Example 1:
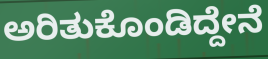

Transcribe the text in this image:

ಅರಿತುಕೊಂಡಿದ್ದೇನೆ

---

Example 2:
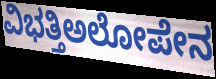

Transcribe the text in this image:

ವಿಭತ್ತಿಅಲೋಪೇನ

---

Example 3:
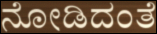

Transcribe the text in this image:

ನೋಡಿದಂತೆ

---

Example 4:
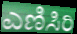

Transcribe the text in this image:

ಎಣಿಸಿರಿ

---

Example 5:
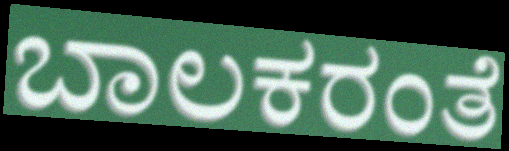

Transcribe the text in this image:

ಬಾಲಕರಂತೆ